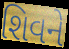
શિવને